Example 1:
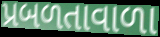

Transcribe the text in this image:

પ્રબળતાવાળા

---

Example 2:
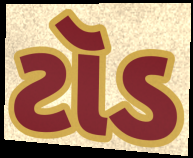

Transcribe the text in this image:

ટૉડ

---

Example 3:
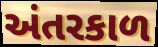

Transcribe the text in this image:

અંતરકાળ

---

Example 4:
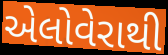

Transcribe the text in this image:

એલોવેરાથી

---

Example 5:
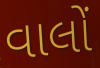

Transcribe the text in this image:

વાલોં